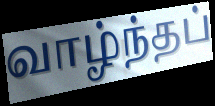
வாழ்ந்தப்